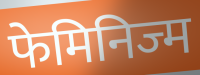
फेमिनिज्‍म